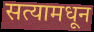
सत्यामधून